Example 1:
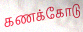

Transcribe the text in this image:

கணக்கோடு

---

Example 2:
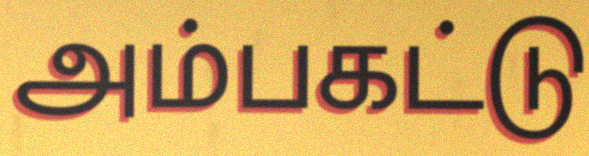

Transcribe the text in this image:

அம்பகட்டு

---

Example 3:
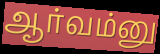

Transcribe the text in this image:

ஆர்வம்னு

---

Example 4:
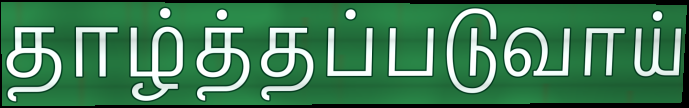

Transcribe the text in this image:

தாழ்த்தப்படுவாய்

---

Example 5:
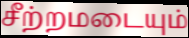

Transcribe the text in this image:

சீற்றமடையும்